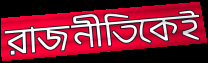
রাজনীতিকেই